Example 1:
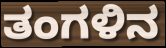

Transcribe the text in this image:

ತಂಗಳಿನ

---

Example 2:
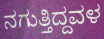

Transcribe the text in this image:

ನಗುತ್ತಿದ್ದವಳ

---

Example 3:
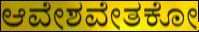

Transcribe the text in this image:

ಆವೇಶವೇತಕೋ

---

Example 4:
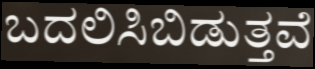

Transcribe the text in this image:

ಬದಲಿಸಿಬಿಡುತ್ತವೆ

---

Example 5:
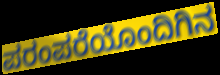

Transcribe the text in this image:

ಪರಂಪರೆಯೊಂದಿಗಿನ